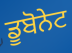
ਡੂਬੋਨੇਟ